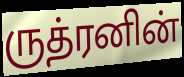
ருத்ரனின்